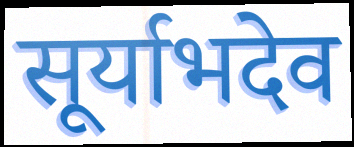
सूर्याभदेव